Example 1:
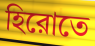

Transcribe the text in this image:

হিরোতে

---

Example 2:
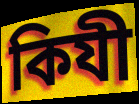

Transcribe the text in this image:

কিযী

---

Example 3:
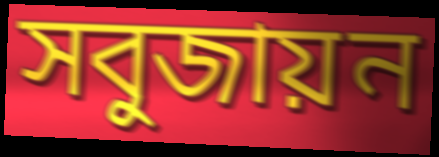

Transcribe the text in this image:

সবুজায়ন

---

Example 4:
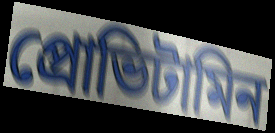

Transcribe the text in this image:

প্রোভিটামিন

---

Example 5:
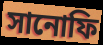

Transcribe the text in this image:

সানোফি